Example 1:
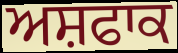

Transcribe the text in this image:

ਅਸ਼ਫਾਕ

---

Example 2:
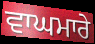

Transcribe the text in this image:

ਵਾਘਮਾਰੇ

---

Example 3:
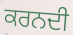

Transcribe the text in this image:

ਕਰਨਦੀ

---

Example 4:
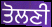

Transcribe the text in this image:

ਤੋਲਣੀ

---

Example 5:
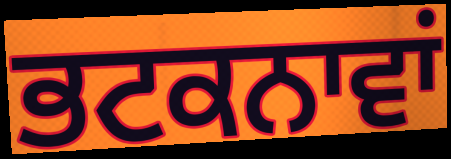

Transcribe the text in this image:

ਭਟਕਨਾਵਾਂ